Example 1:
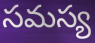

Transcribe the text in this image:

సమస్య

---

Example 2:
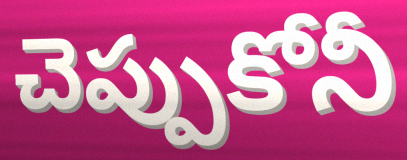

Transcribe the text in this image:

చెప్పుకోనీ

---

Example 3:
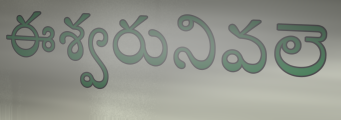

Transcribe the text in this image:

ఈశ్వరునివలె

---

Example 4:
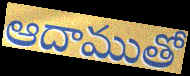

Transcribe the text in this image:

ఆదాముతో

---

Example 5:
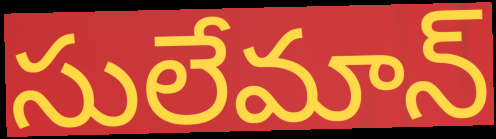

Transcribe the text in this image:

సులేమాన్